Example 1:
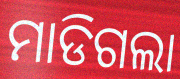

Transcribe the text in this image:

ମାଡିଗଲା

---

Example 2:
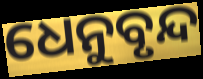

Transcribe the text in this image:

ଧେନୁବୃନ୍ଦ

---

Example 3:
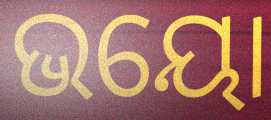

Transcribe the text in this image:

ଭୟୋ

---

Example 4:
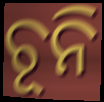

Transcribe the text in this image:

ଚୂନି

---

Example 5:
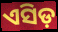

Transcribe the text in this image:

ଏସିଡ଼